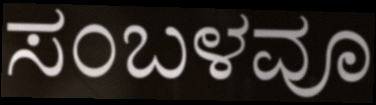
ಸಂಬಳವೂ